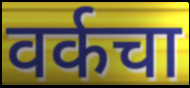
वर्कचा